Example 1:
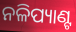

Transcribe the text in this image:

ନଳିପ୍ୟାଣ୍ଟ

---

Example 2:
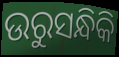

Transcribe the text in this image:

ଉରୁସନ୍ଧିକି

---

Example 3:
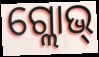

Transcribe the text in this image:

ଗ୍ଲୋଭ୍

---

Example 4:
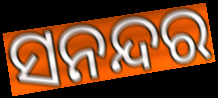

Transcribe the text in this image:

ସନନ୍ଦର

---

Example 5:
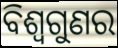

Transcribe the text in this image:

ବିଶ୍ୱଗୁଣର